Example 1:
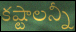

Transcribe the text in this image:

కష్టాలన్నీ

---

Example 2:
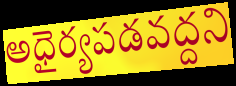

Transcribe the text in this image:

అధైర్యపడవద్దని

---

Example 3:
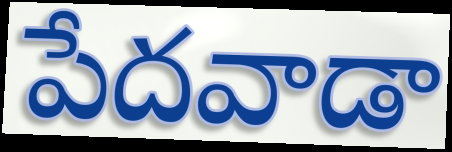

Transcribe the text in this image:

పేదవాడా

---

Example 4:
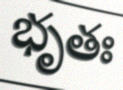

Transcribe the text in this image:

భృతః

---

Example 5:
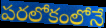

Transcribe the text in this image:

పరలోకంలోనే